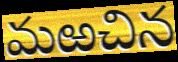
మఱచిన